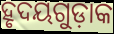
ହୃଦୟଗୁଡ଼ାକ